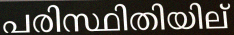
പരിസ്ഥിതിയില്